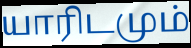
யாரிடமும்